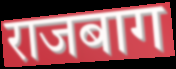
राजबाग